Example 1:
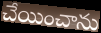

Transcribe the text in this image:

చేయించాను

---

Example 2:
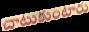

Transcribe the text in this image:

చాటుకుంటారు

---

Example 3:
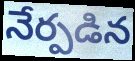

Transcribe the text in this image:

నేర్పడిన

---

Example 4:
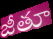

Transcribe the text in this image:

జీతూ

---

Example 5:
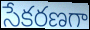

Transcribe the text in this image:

సేకరణగా